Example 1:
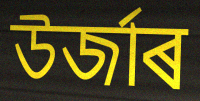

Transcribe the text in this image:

উৰ্জাৰ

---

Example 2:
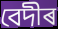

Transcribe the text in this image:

বেদীৰ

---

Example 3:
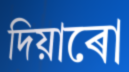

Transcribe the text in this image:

দিয়াৰো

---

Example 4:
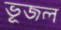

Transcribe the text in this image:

ভূজল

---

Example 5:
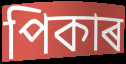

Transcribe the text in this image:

পিকাৰ